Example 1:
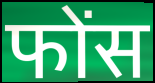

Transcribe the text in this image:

फोंस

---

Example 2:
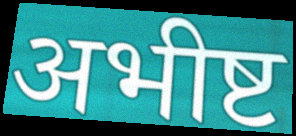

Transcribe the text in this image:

अभीष्ट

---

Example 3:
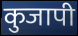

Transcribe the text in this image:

कुजापी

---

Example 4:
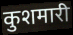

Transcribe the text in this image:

कुशमारी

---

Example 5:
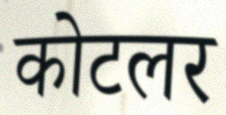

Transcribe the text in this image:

कोटलर